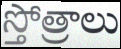
స్తోత్రాలు